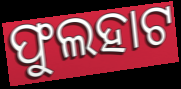
ଫୁଲହାଟ